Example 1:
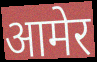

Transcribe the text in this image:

आमेर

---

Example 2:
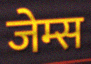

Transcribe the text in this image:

जेम्स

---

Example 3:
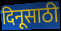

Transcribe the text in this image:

दिनूसाठी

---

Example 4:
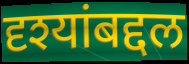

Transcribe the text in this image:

दृश्यांबद्दल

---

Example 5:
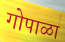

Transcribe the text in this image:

गोपाळा